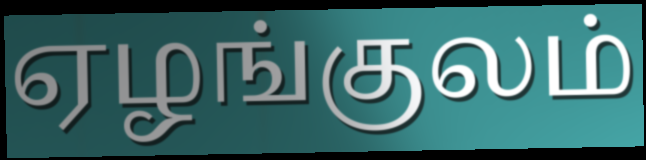
ஏழங்குலம்